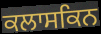
ਕਲਾਸਕਿਨ